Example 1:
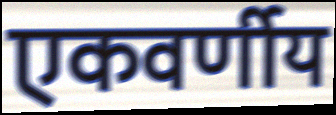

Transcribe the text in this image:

एकवर्णीय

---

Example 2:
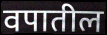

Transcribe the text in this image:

वपातील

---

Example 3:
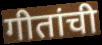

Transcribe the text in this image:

गीतांची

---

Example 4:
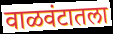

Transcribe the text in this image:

वाळवंटातला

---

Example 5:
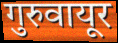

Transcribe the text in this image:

गुरुवायूर